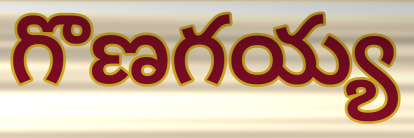
గొణగయ్య